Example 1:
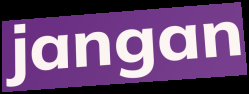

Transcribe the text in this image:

jangan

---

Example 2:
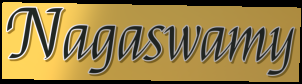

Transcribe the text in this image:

Nagaswamy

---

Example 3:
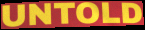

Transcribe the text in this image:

UNTOLD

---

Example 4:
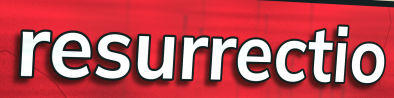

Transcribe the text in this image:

resurrectio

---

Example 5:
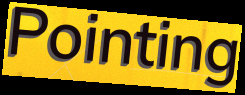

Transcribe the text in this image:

Pointing